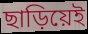
ছাড়িয়েই